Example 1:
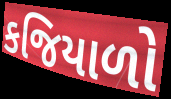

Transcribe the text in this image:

કજિયાળો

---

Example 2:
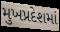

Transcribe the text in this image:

મુખપ્રદેશમાં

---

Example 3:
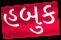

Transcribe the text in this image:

હબુક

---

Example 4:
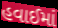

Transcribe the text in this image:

હવાઈમાં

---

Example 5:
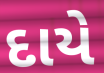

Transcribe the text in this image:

દાયે